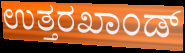
ಉತ್ತರಖಾಂಡ್